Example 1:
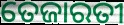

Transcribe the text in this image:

ତେଜାରତୀ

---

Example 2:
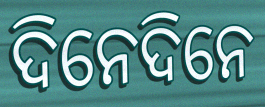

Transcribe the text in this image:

ଦିନେଦିନେ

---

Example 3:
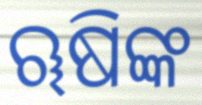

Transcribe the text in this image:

ୠଷିଙ୍କ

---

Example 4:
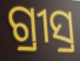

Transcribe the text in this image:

ଗ୍ରୀସ୍ର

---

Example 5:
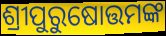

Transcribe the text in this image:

ଶ୍ରୀପୁରୁଷୋତ୍ତମଙ୍କ